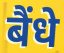
बैंधे